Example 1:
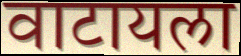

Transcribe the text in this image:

वाटायला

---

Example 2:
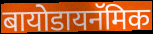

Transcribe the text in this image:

बायोडायनॅमिक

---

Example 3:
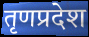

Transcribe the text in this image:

तृणप्रदेश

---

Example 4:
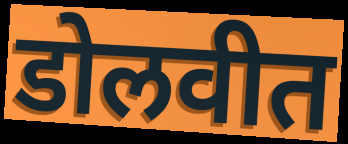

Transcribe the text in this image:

डोलवीत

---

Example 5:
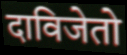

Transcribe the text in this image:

दाविजेतो